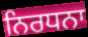
ਨਿਰਧਨਾ